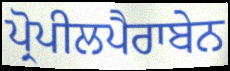
ਪ੍ਰੋਪੀਲਪੈਰਾਬੇਨ